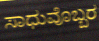
ಸಾಧುವೊಬ್ಬರ